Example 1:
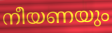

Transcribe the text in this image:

നീയണയും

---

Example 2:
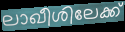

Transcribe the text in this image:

ലാഖീശിലേക്ക്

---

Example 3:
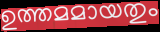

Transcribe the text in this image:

ഉത്തമമായതും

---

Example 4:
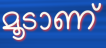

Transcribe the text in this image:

മൂടാണ്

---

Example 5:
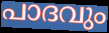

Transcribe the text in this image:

പാദവും